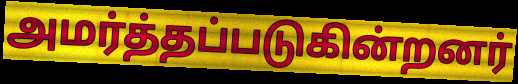
அமர்த்தப்படுகின்றனர்